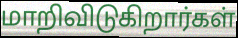
மாறிவிடுகிறார்கள்